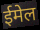
ईमेल